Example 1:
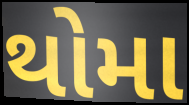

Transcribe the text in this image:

થોમા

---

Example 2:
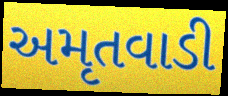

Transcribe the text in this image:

અમૃતવાડી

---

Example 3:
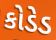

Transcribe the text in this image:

કોડેડ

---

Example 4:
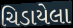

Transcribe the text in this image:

ચિડાયેલા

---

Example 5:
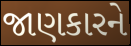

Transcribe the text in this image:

જાણકારને